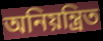
অনিয়ন্ত্ৰিত